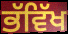
ਭੱਵਿੱਖ